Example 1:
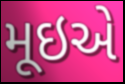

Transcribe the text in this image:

મૂઇએ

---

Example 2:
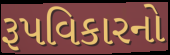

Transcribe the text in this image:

રૂપવિકારનો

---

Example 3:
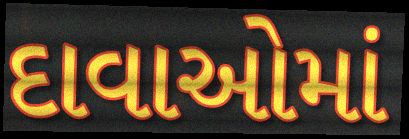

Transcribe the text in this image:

દાવાઓમાં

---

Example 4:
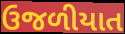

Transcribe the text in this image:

ઉજળીયાત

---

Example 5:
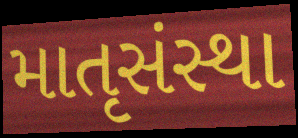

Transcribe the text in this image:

માતૃસંસ્થા